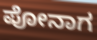
ಪೋನಾಗ